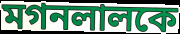
মগনলালকে